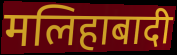
मलिहाबादी